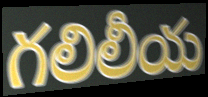
గలిలీయ